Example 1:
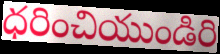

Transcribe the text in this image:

ధరించియుండిరి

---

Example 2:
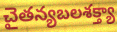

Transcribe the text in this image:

చైతన్యబలశక్త్యా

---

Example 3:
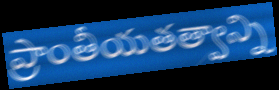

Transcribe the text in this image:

ప్రాంతీయతత్వాన్ని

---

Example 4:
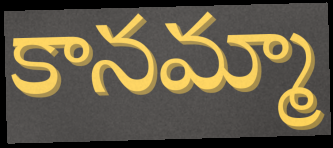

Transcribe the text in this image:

కానమ్మా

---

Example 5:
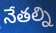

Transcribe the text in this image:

నేతల్ని